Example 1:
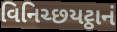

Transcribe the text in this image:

વિનિચ્છયટ્ઠાનં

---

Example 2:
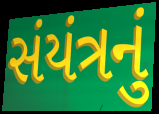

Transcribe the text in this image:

સંયંત્રનું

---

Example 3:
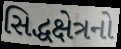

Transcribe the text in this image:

સિદ્ધક્ષેત્રનો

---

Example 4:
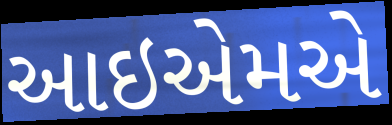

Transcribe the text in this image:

આઇએમએ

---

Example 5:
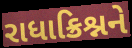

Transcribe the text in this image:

રાધાક્રિશ્નને